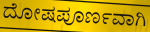
ದೋಷಪೂರ್ಣವಾಗಿ